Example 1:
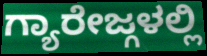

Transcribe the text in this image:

ಗ್ಯಾರೇಜ್ಗಳಲ್ಲಿ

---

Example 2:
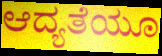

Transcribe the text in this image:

ಆದ್ಯತೆಯೂ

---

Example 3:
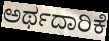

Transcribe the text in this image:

ಅರ್ಥದಾರಿಕೆ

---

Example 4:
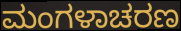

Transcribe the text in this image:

ಮಂಗಳಾಚರಣ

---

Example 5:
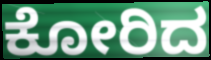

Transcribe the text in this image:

ಕೋರಿದ